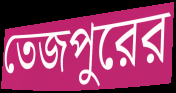
তেজপুরের